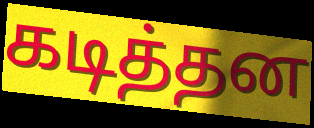
கடித்தன